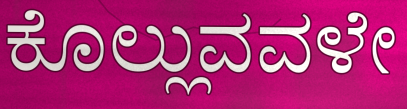
ಕೊಲ್ಲುವವಳೇ